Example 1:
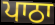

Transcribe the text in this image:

ਪਾਠਾ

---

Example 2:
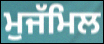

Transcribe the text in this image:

ਮੁਜੱਮਿਲ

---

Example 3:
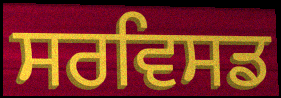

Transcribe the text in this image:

ਸਰਵਿਸਡ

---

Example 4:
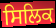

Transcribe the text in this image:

ਸਿਲਿਕ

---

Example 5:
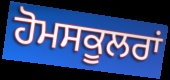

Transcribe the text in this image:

ਹੋਮਸਕੂਲਰਾਂ